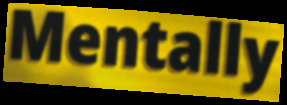
Mentally